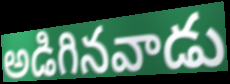
అడిగినవాడు